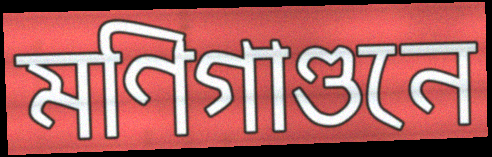
মণিগাণ্ডনে